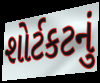
શોર્ટકટનું